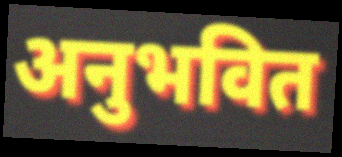
अनुभवित